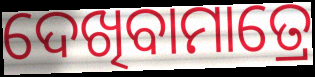
ଦେଖିବାମାତ୍ରେ